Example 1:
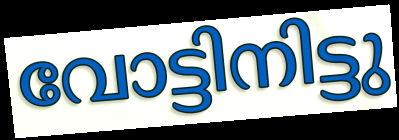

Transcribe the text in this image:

വോട്ടിനിട്ടു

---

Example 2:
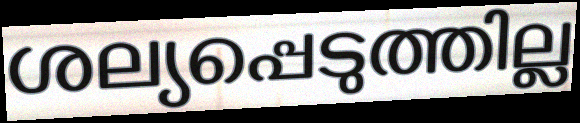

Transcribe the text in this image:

ശല്യപ്പെടുത്തില്ല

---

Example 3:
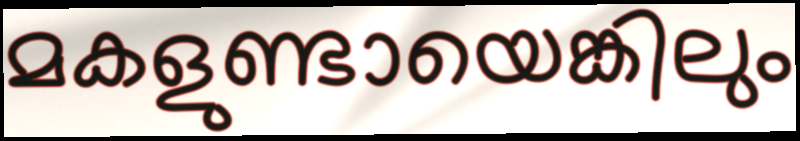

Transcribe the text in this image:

മകളുണ്ടായെങ്കിലും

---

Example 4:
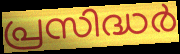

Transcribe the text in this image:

പ്രസിദ്ധർ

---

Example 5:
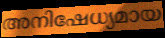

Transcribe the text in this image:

അനിഷേധ്യമായ